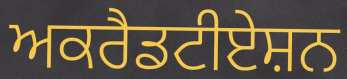
ਅਕਰੈਡਟੀਏਸ਼ਨ